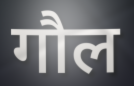
गौल